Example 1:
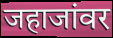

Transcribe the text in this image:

जहाजांवर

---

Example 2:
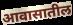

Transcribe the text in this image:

आवासातील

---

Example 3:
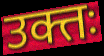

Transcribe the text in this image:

उक्तः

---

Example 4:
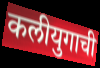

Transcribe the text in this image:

कलीयुगाची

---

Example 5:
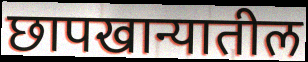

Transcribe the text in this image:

छापखान्यातील